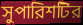
সুপারিশটির